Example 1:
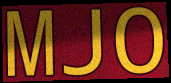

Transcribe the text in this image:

MJO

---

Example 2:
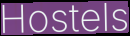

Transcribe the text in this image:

Hostels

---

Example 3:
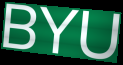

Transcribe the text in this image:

BYU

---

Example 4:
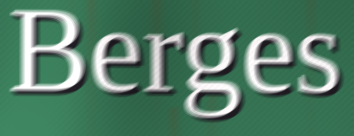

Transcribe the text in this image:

Berges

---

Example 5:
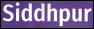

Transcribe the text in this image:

Siddhpur